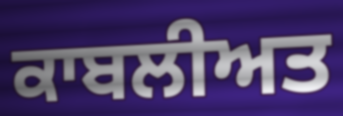
ਕਾਬਲੀਅਤ